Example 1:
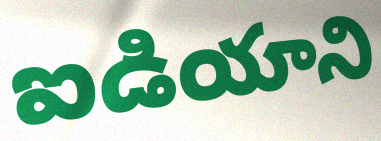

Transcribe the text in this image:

ఐడియాని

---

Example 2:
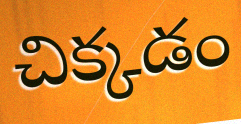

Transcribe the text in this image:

చిక్కడం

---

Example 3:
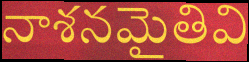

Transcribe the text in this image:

నాశనమైతివి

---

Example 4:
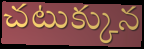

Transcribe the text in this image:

చటుక్కున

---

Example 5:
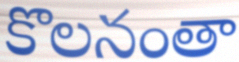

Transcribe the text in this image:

కొలనంతా